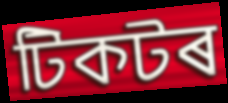
টিকটৰ